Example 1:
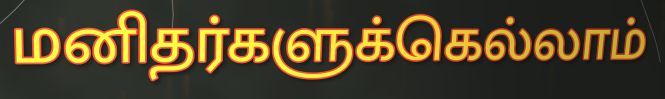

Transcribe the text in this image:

மனிதர்களுக்கெல்லாம்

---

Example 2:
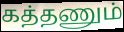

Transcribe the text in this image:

கத்தணும்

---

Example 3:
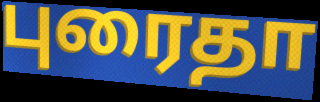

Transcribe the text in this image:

புரைதா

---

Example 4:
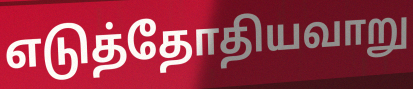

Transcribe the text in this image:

எடுத்தோதியவாறு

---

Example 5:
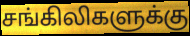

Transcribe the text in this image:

சங்கிலிகளுக்கு